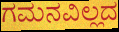
ಗಮನವಿಲ್ಲದ